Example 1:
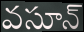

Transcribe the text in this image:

వసూన్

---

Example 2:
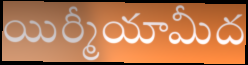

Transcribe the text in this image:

యిర్మీయామీద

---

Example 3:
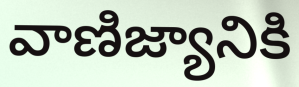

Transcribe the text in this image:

వాణిజ్యానికి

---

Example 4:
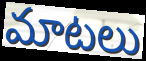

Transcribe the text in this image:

మాటలు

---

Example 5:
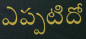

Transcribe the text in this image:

ఎప్పటిదో